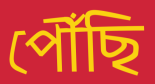
পৌঁছি